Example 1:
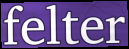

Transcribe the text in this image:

felter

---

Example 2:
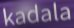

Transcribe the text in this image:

kadala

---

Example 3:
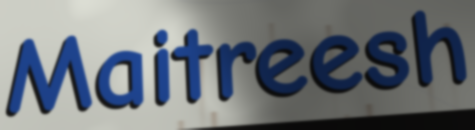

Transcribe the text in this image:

Maitreesh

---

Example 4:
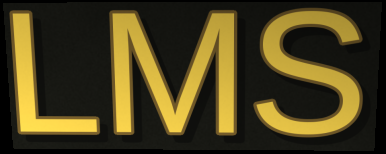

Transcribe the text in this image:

LMS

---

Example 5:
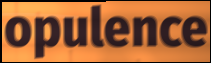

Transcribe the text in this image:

opulence